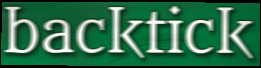
backtick